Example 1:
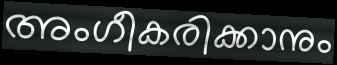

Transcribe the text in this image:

അംഗീകരിക്കാനും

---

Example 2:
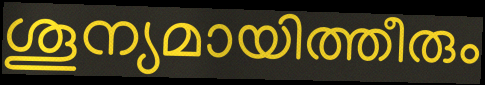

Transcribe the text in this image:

ശൂന്യമായിത്തീരും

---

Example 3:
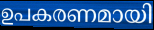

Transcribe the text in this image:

ഉപകരണമായി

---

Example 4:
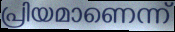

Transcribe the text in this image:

പ്രിയമാണെന്ന്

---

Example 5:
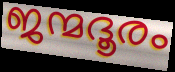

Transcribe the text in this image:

ജന്മദൂരം